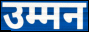
उम्मन